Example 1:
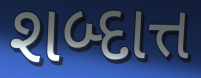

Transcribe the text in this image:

શબ્દાત્ત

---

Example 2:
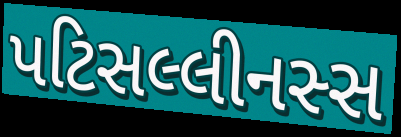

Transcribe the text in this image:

પટિસલ્લીનસ્સ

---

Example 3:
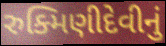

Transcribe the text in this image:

રુક્મિણીદેવીનું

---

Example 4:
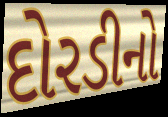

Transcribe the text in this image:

દોરડીનો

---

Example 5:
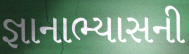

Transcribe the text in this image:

જ્ઞાનાભ્યાસની